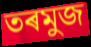
তৰমুজ